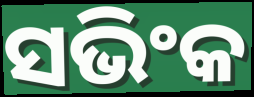
ସଭିଂକ